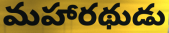
మహారథుడు